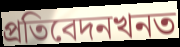
প্ৰতিবেদনখনত